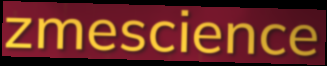
zmescience